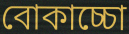
বোকাচ্চো